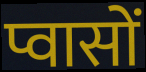
प्वासों